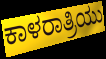
ಕಾಳರಾತ್ರಿಯು